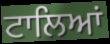
ਟਾਲਿਆਂ